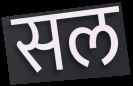
सल